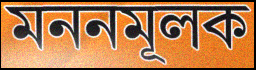
মননমূলক